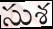
సుశ